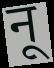
नू